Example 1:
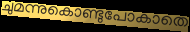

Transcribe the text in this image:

ചുമന്നുകൊണ്ടുപോകാതെ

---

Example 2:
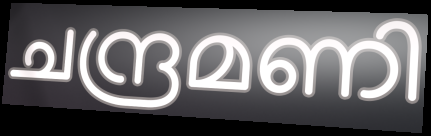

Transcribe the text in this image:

ചന്ദ്രമണി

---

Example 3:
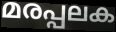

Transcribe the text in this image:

മരപ്പലക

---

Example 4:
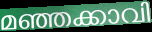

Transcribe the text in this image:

മഞ്ഞക്കാവി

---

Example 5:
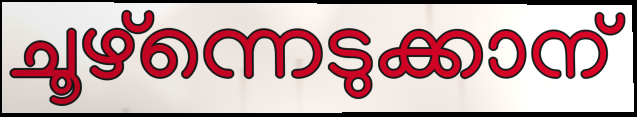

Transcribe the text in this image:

ചൂഴ്ന്നെടുക്കാന്